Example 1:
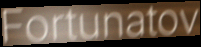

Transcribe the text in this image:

Fortunatov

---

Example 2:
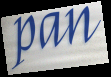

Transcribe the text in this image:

pan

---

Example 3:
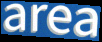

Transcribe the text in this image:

area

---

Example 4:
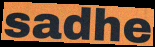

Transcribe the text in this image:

sadhe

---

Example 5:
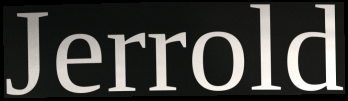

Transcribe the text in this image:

Jerrold